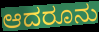
ಆದರೂನು